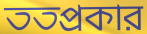
ততপ্রকার